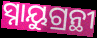
ସ୍ନାୟୁଗ୍ରନ୍ଥୀ